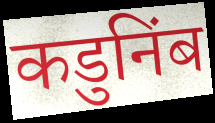
कडुनिंब